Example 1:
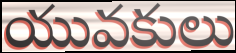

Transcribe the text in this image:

యువకులు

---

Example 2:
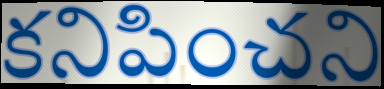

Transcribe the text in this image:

కనిపించని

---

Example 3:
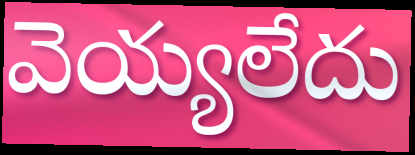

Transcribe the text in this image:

వెయ్యలేదు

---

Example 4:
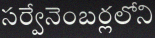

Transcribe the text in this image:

సర్వేనెంబర్లలోని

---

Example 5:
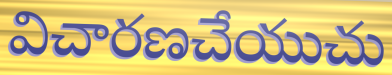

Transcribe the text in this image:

విచారణచేయుచు